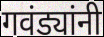
गवंड्यांनी